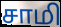
சாமி